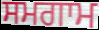
ਸਮਗਾਮ